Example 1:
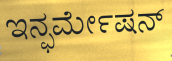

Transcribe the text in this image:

ಇನ್ಫರ್ಮೇಷನ್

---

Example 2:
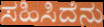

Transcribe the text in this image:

ಸಹಿಸಿದೆನು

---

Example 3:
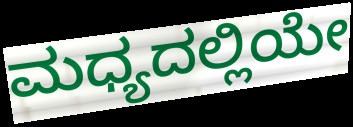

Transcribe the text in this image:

ಮಧ್ಯದಲ್ಲಿಯೇ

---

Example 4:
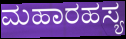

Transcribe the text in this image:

ಮಹಾರಹಸ್ಯ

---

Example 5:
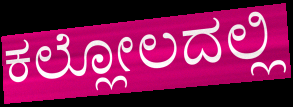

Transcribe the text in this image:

ಕಲ್ಲೋಲದಲ್ಲಿ